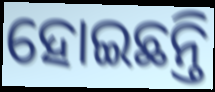
ହୋଇଛନ୍ତି